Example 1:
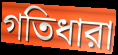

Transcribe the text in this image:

গতিধারা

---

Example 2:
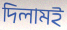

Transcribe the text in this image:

দিলামই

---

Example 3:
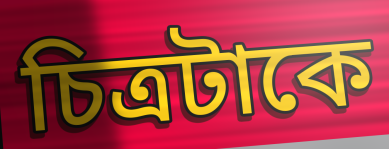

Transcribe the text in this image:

চিত্রটাকে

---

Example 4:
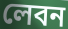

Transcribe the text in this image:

লেবন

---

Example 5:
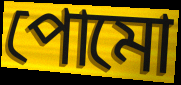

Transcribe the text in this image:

পোমো